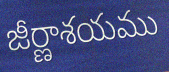
జీర్ణాశయము